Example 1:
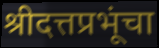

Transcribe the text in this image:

श्रीदत्तप्रभूंचा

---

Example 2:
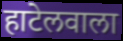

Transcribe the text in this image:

हाटेलवाला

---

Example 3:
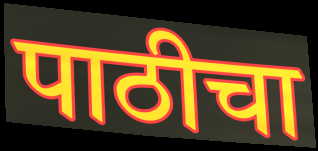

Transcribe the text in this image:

पाठीचा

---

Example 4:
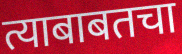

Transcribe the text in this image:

त्याबाबतचा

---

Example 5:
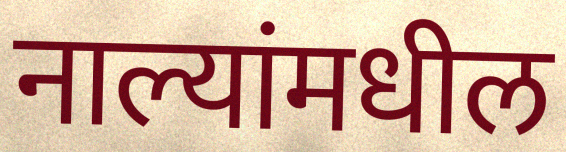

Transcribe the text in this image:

नाल्यांमधील